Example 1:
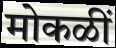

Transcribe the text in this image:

मोकळीं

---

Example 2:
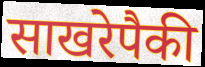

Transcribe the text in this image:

साखरेपैकी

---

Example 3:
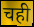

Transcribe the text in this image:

चही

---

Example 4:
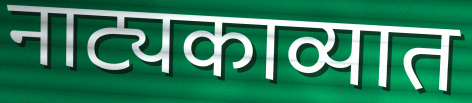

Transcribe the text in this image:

नाट्यकाव्यात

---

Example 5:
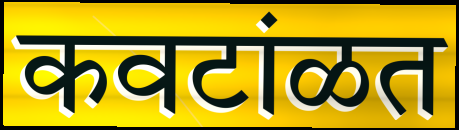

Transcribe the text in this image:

कवटांळत